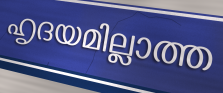
ഹൃദയമില്ലാത്ത